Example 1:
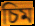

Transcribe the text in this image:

চিম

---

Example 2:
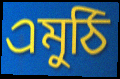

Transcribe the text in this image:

এমুঠি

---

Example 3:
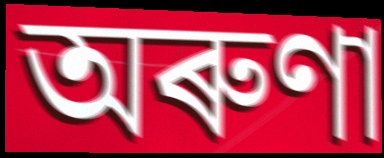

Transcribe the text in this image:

অৰুণা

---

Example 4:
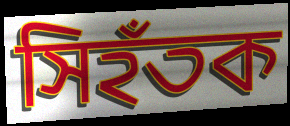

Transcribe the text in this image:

সিহঁতক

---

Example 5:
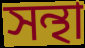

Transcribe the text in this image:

সন্থা